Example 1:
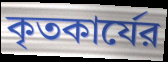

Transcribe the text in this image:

কৃতকার্যের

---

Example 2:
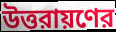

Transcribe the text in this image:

উত্তরায়ণের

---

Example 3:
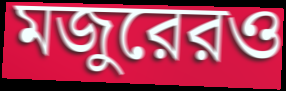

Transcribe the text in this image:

মজুরেরও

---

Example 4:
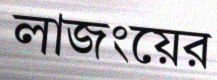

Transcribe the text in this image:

লাজংয়ের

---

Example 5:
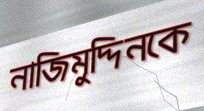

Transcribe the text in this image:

নাজিমুদ্দিনকে